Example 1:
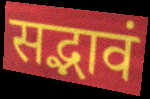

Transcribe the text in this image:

सद्भावं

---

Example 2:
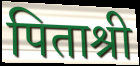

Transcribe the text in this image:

पिताश्री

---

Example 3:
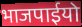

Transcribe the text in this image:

भाजपाईयो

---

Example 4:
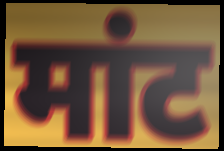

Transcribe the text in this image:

मांट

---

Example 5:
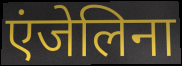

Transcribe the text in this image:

एंजेलिना